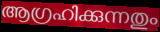
ആഗ്രഹിക്കുന്നതും